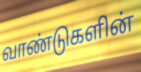
வாண்டுகளின்